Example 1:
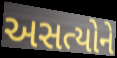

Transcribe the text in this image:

અસત્યોને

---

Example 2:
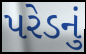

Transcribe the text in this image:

પરેડનું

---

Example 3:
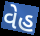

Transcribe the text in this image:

વેહ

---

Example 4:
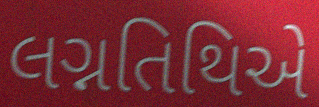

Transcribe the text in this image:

લગ્નતિથિએ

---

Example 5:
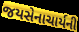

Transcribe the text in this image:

જયસેનાચાર્યની